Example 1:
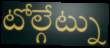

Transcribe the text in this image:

టోల్గేట్ను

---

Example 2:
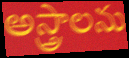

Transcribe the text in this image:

అస్త్రాలను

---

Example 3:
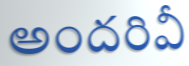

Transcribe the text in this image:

అందరివీ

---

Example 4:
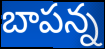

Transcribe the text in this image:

బాపన్న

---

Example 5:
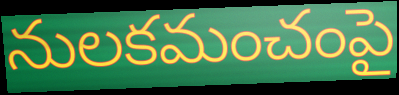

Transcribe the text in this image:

నులకమంచంపై